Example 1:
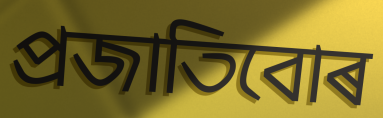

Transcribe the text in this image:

প্ৰজাতিবোৰ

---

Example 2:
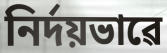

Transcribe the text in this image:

নিৰ্দয়ভাৱে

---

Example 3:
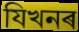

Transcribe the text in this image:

যিখনৰ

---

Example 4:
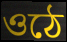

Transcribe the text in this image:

ওঠে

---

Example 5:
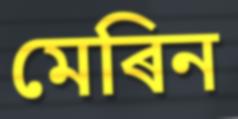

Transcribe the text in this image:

মেৰিন